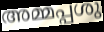
അമ്മപ്പശു